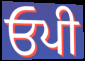
ਓਪੀ